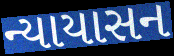
ન્યાયાસન